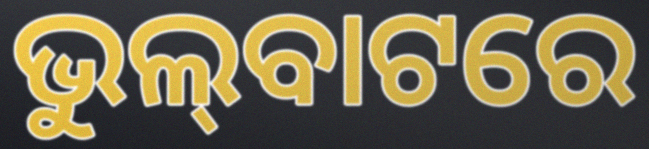
ଭୁଲ୍‌ବାଟରେ